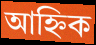
আহ্নিক